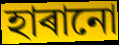
হাৰানো